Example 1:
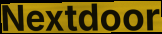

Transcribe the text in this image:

Nextdoor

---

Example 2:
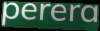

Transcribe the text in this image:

perera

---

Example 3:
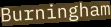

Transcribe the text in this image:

Burningham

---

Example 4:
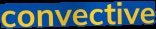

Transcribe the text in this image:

convective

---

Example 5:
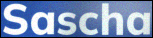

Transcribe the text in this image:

Sascha